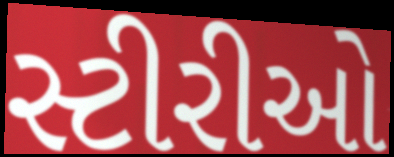
સ્ટીરીઓ